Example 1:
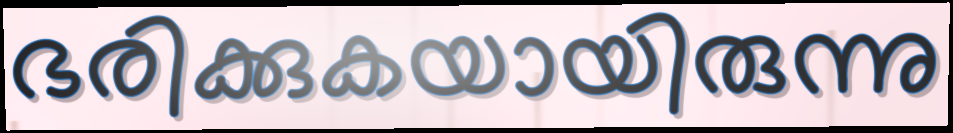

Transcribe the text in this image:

ഭരിക്കുകയായിരുന്നു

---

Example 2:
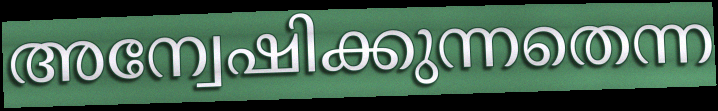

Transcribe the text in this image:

അന്വേഷിക്കുന്നതെന്ന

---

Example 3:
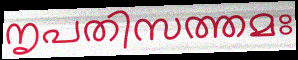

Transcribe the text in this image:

നൃപതിസത്തമഃ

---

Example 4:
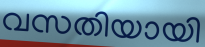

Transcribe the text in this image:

വസതിയായി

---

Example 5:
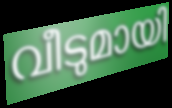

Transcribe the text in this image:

വീടുമായി